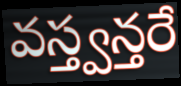
వస్త్వన్తరే